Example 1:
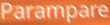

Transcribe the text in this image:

Parampare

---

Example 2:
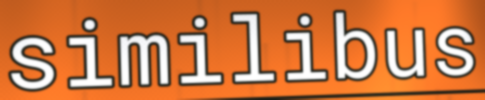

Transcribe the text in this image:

similibus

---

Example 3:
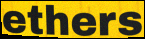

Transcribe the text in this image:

ethers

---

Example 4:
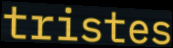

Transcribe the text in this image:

tristes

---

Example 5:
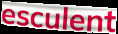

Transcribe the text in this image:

esculent